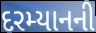
દરમ્યાનની